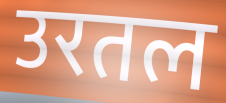
उरतल